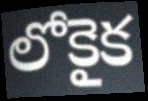
లోకైక